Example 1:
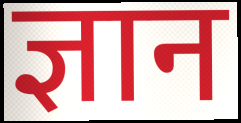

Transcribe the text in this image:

ज्ञान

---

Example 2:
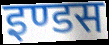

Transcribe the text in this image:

इण्डस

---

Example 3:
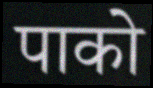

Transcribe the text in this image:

पाको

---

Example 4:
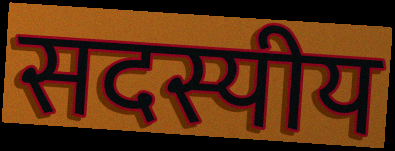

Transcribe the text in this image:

सदस्यीय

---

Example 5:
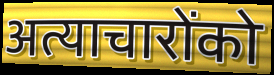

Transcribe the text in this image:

अत्याचारोंको